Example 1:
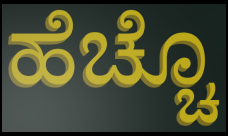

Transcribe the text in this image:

ಹೆಚ್ಚೊ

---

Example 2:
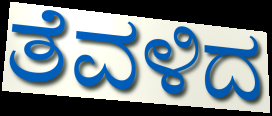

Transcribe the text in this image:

ತೆವಳಿದ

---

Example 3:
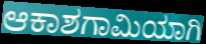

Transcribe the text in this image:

ಆಕಾಶಗಾಮಿಯಾಗಿ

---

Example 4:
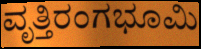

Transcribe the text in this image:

ವೃತ್ತಿರಂಗಭೂಮಿ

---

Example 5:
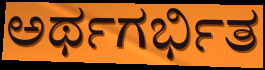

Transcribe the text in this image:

ಅರ್ಥಗರ್ಭಿತ